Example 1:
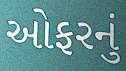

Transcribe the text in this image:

ઓફરનું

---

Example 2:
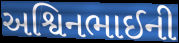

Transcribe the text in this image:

અશ્વિનભાઈની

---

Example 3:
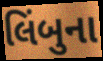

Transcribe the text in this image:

લિંબુના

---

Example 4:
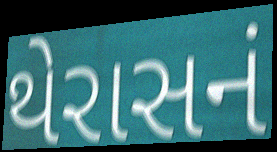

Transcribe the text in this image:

થેરાસનં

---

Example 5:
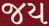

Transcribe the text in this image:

જય